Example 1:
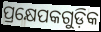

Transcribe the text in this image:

ପ୍ରକ୍ଷେପକଗୁଡ଼ିକ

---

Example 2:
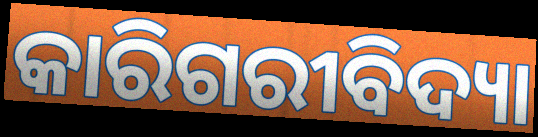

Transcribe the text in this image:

କାରିଗରୀବିଦ୍ୟା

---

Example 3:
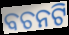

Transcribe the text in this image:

ବଚନଟି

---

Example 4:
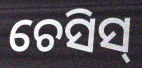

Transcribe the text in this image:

ଚେସିସ୍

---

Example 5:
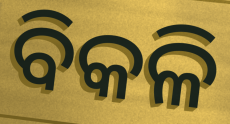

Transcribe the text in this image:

ବିକଳି